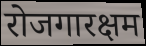
रोजगारक्षम